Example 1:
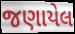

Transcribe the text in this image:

જણાયેલ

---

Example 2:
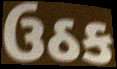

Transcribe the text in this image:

ઉઠક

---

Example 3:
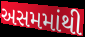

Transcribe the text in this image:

અસમમાંથી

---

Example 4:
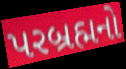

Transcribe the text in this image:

પરબ્રહ્મનો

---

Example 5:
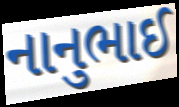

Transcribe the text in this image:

નાનુભાઈ